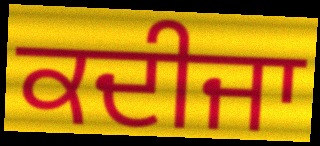
ਕਦੀਜਾ